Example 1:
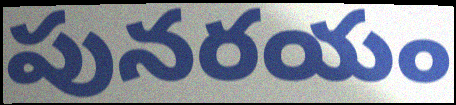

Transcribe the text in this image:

పునరయం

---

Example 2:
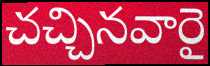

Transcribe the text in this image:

చచ్చినవారై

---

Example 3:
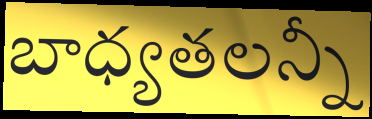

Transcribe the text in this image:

బాధ్యతలన్నీ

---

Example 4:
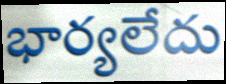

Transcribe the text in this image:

భార్యలేదు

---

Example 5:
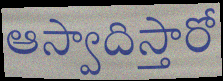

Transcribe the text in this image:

ఆస్వాదిస్తారో